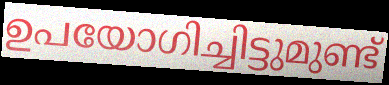
ഉപയോഗിച്ചിട്ടുമുണ്ട്